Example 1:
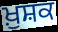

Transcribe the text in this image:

ਖ਼ੁਸ਼ਕ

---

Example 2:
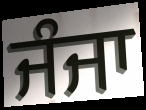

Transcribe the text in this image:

ਜੰਜਾ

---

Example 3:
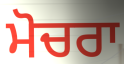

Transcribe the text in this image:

ਮੋਚਰਾ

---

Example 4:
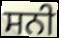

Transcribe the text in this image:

ਸਨੀ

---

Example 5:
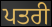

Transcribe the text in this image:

ਪਤਰੀ